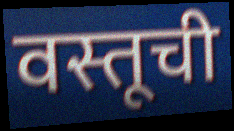
वस्तूची